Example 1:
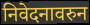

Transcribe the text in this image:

निवेदनावरुन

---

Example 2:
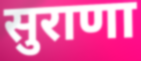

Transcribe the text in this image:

सुराणा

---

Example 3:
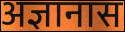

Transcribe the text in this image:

अज्ञानास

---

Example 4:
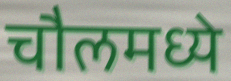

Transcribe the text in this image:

चौलमध्ये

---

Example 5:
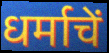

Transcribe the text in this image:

धर्माचें